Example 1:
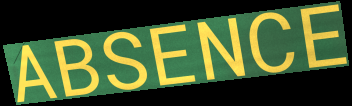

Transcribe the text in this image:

ABSENCE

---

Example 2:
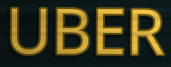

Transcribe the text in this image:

UBER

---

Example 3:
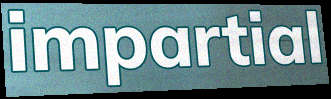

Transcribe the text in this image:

impartial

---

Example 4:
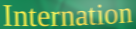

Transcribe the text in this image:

Internation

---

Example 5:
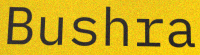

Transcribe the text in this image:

Bushra